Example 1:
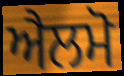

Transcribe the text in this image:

ਐਲਮੋ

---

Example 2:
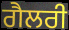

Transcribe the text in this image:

ਗੈਲਰੀ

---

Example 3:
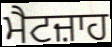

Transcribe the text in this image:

ਮੈਟਜ਼ਾਹ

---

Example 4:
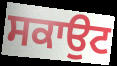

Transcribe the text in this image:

ਸਕਾਉਟ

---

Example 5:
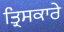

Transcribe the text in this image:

ਤ੍ਰਿਸਕਾਰੇ